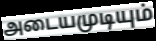
அடையமுடியும்